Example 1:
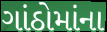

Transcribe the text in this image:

ગાંઠોમાંના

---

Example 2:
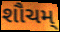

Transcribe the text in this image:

શૌચમ્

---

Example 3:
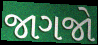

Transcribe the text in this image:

જાગજો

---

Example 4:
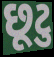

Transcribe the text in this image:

છૂટુ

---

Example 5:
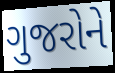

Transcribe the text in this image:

ગુજરોને